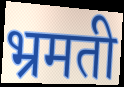
भ्रमती